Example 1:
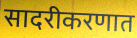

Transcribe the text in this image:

सादरीकरणात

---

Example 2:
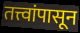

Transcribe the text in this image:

तत्त्वांपासून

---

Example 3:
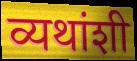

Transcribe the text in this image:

व्यथांशी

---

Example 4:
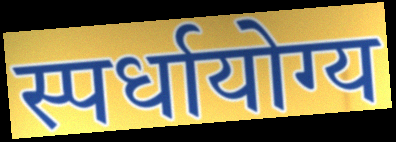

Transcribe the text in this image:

स्पर्धायोग्य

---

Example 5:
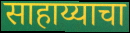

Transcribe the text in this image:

साहाय्याचा